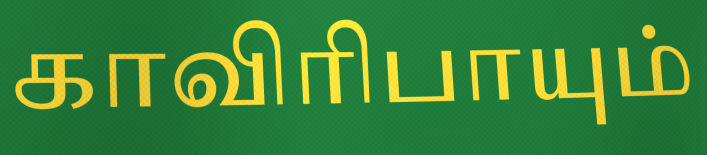
காவிரிபாயும்